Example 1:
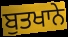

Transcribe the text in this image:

ਬੁਤਖਾਨੇ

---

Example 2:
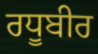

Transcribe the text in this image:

ਰਧੂਬੀਰ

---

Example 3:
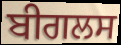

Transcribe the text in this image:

ਬੀਗਲਸ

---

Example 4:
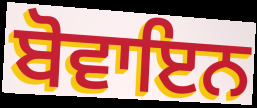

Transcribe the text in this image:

ਬੋਵਾਇਨ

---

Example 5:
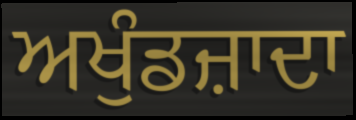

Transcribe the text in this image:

ਅਖੁੰਡਜ਼ਾਦਾ